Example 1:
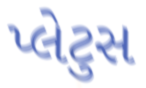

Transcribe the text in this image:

પ્લેટુસ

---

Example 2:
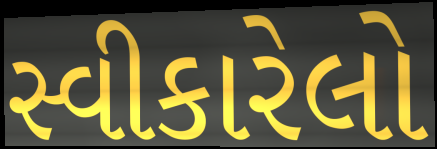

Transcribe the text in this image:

સ્વીકારેલો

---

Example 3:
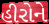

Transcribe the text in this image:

હીરોને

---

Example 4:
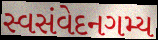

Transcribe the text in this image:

સ્વસંવેદનગમ્ય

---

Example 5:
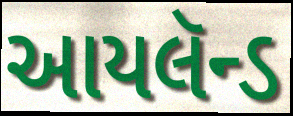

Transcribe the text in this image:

આયલૅન્ડ